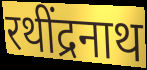
रथींद्रनाथ